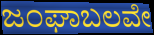
ಜಂಘಾಬಲವೇ